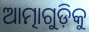
ଆତ୍ମାଗୁଡ଼ିକୁ